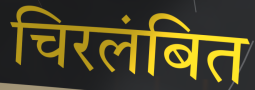
चिरलंबित